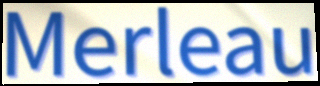
Merleau